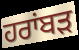
ਹਰਾਂਬੜ